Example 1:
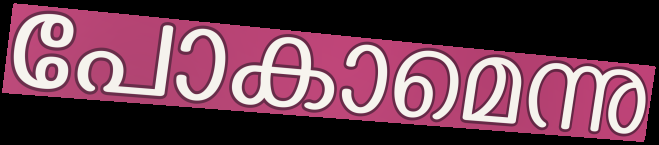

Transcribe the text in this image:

പോകാമെന്നു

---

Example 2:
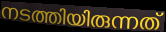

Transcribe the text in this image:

നടത്തിയിരുന്നത്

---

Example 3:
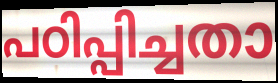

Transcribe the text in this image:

പഠിപ്പിച്ചതാ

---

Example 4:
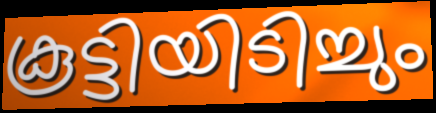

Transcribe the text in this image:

കൂട്ടിയിടിച്ചും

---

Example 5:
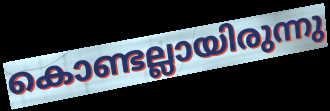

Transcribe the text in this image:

കൊണ്ടല്ലായിരുന്നു